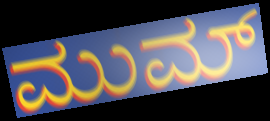
ಮುಮ್